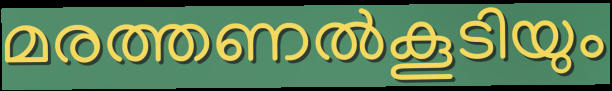
മരത്തണൽകൂടിയും